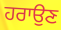
ਹਰਾਉਣ